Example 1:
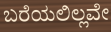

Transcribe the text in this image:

ಬರೆಯಲಿಲ್ಲವೇ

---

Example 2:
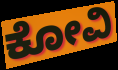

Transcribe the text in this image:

ಕೋವಿ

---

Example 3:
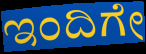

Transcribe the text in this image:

ಇಂದಿಗೇ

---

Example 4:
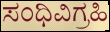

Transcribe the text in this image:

ಸಂಧಿವಿಗ್ರಹಿ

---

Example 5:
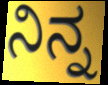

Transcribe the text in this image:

ನಿನ್ನ